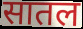
सातल